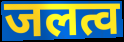
जलत्व